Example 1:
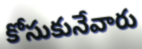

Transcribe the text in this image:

కోసుకునేవారు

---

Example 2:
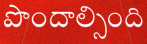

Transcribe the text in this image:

పొందాల్సింది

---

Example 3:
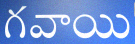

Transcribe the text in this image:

గవాయి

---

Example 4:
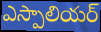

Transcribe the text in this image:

ఎస్పాలియర్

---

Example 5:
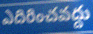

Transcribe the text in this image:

ఎదిరించవద్దు